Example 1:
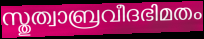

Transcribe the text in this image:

സ്തുത്വാബ്രവീദഭിമതം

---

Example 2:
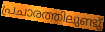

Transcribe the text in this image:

പ്രചാരത്തിലുണ്ടു്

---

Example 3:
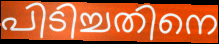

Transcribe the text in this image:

പിടിച്ചതിനെ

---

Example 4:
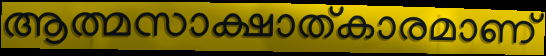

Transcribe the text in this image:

ആത്മസാക്ഷാത്കാരമാണ്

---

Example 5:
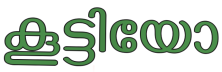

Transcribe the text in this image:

കൂട്ടിയോ